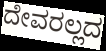
ದೇವರಲ್ಲದ